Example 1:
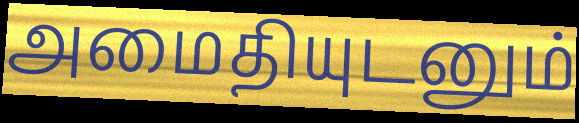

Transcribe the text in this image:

அமைதியுடனும்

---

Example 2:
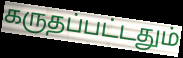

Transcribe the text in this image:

கருதப்பட்டதும்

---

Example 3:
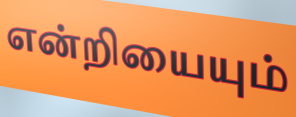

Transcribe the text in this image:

என்றியையும்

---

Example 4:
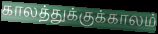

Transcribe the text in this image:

காலத்துக்குக்காலம்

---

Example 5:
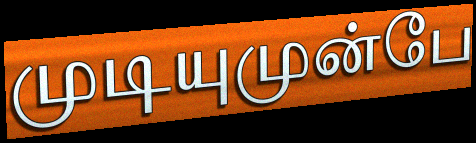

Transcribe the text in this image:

முடியுமுன்பே